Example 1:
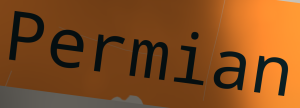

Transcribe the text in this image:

Permian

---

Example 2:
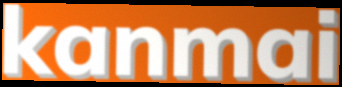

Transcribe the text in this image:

kanmai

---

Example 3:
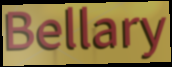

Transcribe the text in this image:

Bellary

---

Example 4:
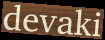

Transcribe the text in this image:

devaki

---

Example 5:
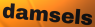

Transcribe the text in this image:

damsels